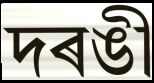
দৰঙী